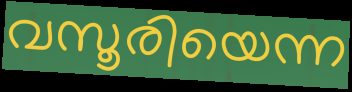
വസൂരിയെന്ന